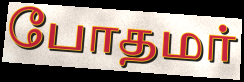
போதமர்